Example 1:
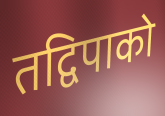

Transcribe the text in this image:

तद्विपाको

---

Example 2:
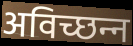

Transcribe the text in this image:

अविच्छन्न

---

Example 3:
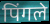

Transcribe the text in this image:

पिंगले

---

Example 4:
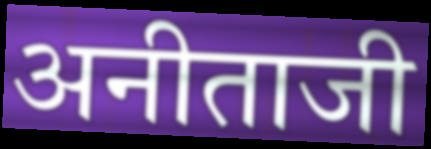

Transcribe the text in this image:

अनीताजी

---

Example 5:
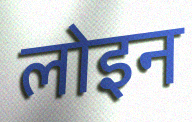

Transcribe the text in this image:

लोइन